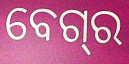
ବେଗ୍‌ର